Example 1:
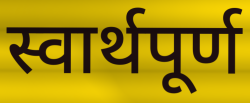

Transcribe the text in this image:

स्वार्थपूर्ण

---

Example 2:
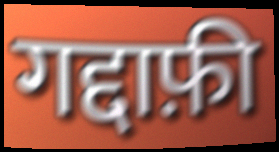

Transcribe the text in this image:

गद्दाफ़ी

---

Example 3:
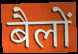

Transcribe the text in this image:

बैलों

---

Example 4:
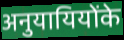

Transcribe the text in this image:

अनुयायियोंके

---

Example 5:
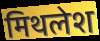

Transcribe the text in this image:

मिथलेश